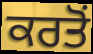
ਕਰਤੋਂ